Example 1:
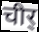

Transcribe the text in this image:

चीर्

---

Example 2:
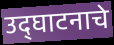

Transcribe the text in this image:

उद्‌घाटनाचे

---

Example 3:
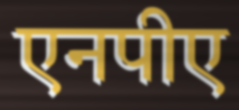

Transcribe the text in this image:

एनपीए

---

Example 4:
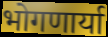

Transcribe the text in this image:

भोगणार्या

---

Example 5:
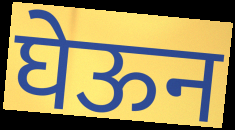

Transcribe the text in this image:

घेऊन